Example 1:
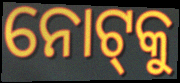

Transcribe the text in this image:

ନୋଟ୍‌କୁ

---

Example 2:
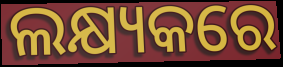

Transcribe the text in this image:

ଲକ୍ଷ୍ୟକରେ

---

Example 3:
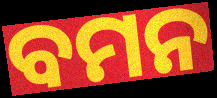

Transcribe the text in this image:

ବମନ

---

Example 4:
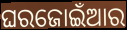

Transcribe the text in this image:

ଘରଜୋଇଁଆର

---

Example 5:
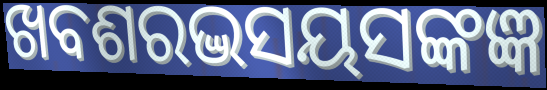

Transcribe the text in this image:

ଖବଶରଦ୍ଭସୟସଙ୍କଜ୍ଞ